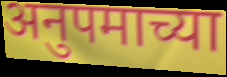
अनुपमाच्या